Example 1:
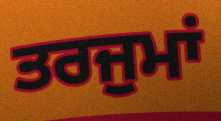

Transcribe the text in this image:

ਤਰਜੁਮਾਂ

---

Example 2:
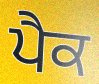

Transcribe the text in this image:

ਪੈਕ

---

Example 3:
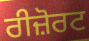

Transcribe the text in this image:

ਰੀਜ਼ੋਰਟ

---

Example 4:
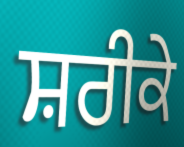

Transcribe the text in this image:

ਸ਼ਰੀਕੇ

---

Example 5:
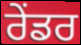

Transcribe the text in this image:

ਰੇੰਡਰ